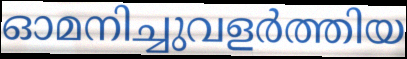
ഓമനിച്ചുവളർത്തിയ